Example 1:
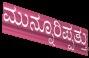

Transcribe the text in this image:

ಮುನ್ನೂರಿಪ್ಪತ್ತು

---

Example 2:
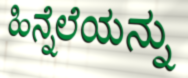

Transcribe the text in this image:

ಹಿನ್ನೆಲೆಯನ್ನು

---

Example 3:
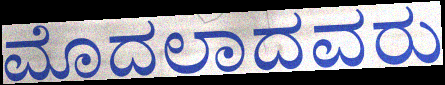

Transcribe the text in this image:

ಮೊದಲಾದವರು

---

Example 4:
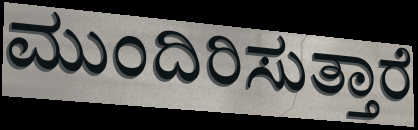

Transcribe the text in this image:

ಮುಂದಿರಿಸುತ್ತಾರೆ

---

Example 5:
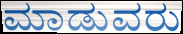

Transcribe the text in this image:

ಮಾಡುವರು